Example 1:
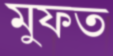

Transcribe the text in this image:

মুফত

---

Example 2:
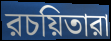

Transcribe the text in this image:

রচয়িতারা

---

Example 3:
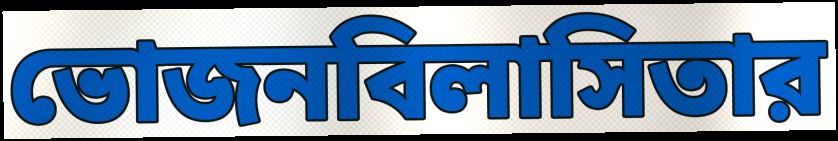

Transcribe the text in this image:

ভোজনবিলাসিতার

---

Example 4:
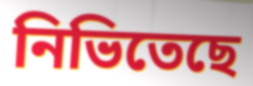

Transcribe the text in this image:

নিভিতেছে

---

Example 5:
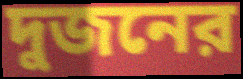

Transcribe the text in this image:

দুজনের